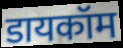
डायकॉम